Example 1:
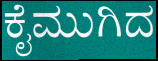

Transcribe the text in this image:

ಕೈಮುಗಿದ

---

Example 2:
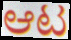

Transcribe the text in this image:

ಆಟ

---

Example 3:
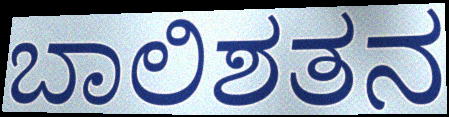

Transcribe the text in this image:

ಬಾಲಿಶತನ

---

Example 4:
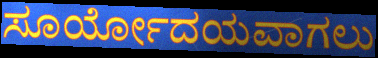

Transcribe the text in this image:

ಸೂರ್ಯೋದಯವಾಗಲು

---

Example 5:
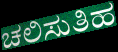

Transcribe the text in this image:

ಚಲಿಸುತಿಹ